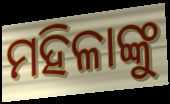
ମହିଳାଙ୍କୁ